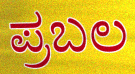
ಪ್ರಬಲ